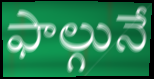
ఫాల్గునే